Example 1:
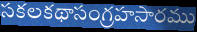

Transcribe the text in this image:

సకలకథాసంగ్రహసారము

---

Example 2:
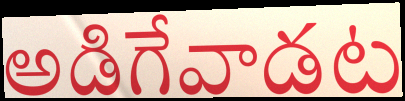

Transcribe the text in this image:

అడిగేవాడట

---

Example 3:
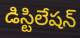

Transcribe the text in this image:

డిస్టిలేషన్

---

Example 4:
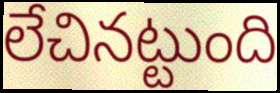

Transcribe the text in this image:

లేచినట్టుంది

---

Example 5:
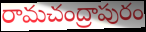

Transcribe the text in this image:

రామచంద్రాపురం